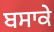
ਬਸਾਕੇ